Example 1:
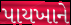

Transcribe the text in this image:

પાયખાને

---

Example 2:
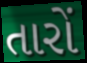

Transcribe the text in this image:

તારોં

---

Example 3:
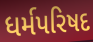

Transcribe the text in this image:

ધર્મપરિષદ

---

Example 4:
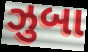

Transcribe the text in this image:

ઝુબા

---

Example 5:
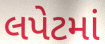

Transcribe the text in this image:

લપેટમાં